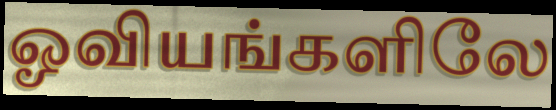
ஓவியங்களிலே